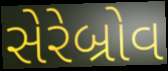
સેરેબ્રોવ